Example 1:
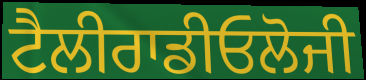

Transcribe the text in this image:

ਟੈਲੀਰਾਡੀਓਲੋਜੀ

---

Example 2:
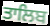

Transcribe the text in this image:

ਤਾਲਿਬ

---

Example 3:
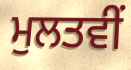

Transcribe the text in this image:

ਮੁਲਤਵੀਂ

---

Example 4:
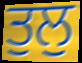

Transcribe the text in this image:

ਤੁਲੁ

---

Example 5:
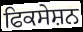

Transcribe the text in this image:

ਫਿਕਸੇਸ਼ਨ